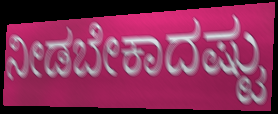
ನೀಡಬೇಕಾದಷ್ಟು